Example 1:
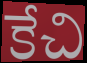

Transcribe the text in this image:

కేచి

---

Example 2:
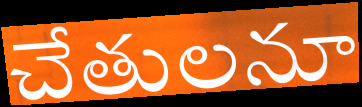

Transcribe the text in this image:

చేతులనూ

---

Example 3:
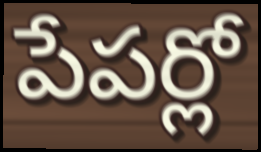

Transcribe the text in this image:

పేపర్లో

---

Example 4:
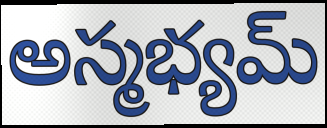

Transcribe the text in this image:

అస్మభ్యమ్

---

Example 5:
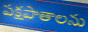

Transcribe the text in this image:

పక్షపాతాలను